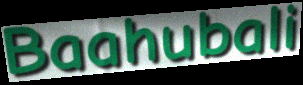
Baahubali